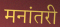
मनांतरी